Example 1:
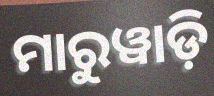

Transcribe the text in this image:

ମାରୁୱାଡ଼ି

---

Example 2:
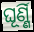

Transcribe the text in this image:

ଘୂର୍ଣ୍ଣି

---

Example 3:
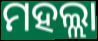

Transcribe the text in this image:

ମହଲ୍ଲା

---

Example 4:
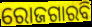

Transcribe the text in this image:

ରୋଜଗାରବି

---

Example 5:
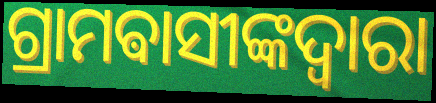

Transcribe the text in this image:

ଗ୍ରାମଵାସୀଙ୍କଦ୍ୱାରା